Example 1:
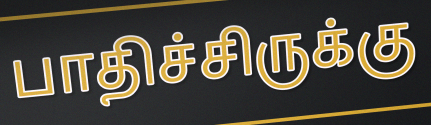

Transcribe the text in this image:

பாதிச்சிருக்கு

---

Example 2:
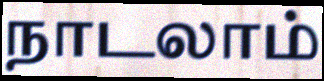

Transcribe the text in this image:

நாடலாம்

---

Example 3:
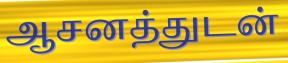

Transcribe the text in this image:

ஆசனத்துடன்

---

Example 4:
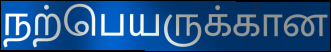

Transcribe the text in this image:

நற்பெயருக்கான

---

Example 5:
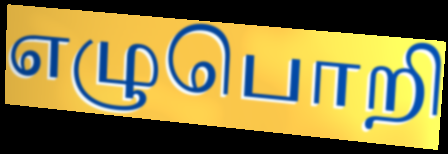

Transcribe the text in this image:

எழுபொறி